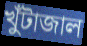
খুঁটাজাল